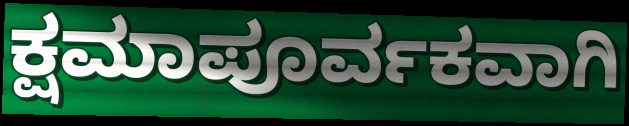
ಕ್ಷಮಾಪೂರ್ವಕವಾಗಿ